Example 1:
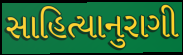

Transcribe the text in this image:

સાહિત્યાનુરાગી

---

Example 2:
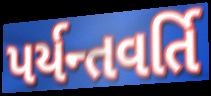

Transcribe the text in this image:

પર્યન્તવર્તિ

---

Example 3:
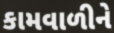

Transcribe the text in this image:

કામવાળીને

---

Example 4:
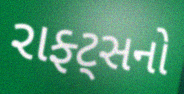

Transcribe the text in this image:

રાફ્ટ્સનો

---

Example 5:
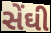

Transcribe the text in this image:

સેંઘી